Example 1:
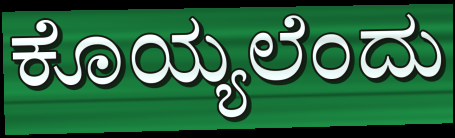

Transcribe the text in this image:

ಕೊಯ್ಯಲೆಂದು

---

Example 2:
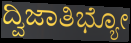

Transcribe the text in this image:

ದ್ವಿಜಾತಿಭ್ಯೋ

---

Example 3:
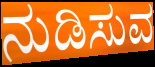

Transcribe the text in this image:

ನುಡಿಸುವ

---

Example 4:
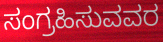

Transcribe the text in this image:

ಸಂಗ್ರಹಿಸುವವರ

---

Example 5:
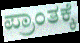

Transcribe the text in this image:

ಪ್ರಾಂತಕ್ಕೆ